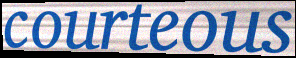
courteous